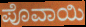
ಪೊವಾಯಿ